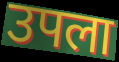
उपला